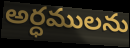
అర్ధములను